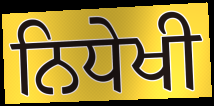
ਨਿਧੇਖੀ